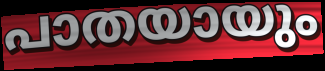
പാതയായും